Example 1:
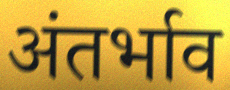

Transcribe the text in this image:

अंतर्भाव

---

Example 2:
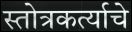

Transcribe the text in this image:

स्तोत्रकर्त्याचे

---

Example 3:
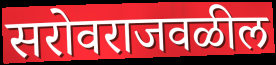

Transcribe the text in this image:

सरोवराजवळील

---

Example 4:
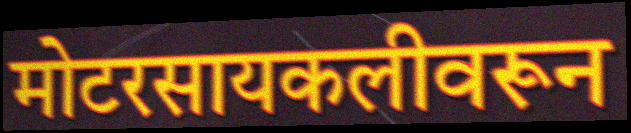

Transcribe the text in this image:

मोटरसायकलीवरून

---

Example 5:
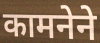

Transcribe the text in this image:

कामनेने